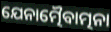
ଯେନାତ୍ମୈବାତ୍ମନା